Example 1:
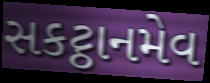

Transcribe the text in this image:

સકટ્ઠાનમેવ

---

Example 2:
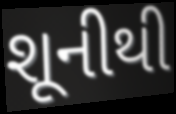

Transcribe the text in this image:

શૂનીથી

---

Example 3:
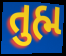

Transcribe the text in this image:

તુહ્મ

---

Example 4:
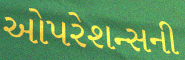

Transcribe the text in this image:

ઓપરેશન્સની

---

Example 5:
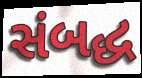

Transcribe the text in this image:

સંબદ્ધ